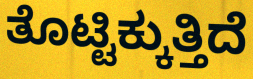
ತೊಟ್ಟಿಕ್ಕುತ್ತಿದೆ